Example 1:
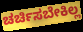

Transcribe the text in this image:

ಚರ್ಚಿಸಬೇಕಿಲ್ಲ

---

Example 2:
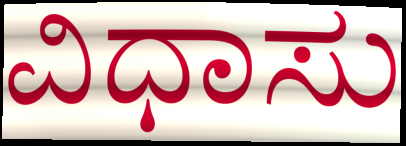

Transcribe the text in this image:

ವಿಧಾಸು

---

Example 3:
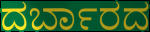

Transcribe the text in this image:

ದರ್ಬಾರದ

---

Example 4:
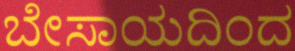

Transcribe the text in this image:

ಬೇಸಾಯದಿಂದ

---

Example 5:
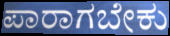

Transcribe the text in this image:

ಪಾರಾಗಬೇಕು